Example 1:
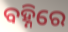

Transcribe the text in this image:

ବହ୍ନିରେ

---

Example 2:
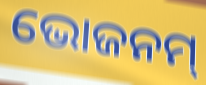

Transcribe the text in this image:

ଭୋଜନମ୍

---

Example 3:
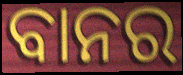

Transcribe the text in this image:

ବାନର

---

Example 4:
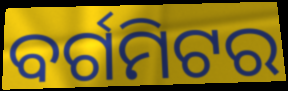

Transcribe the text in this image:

ବର୍ଗମିଟର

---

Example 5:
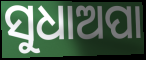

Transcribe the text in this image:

ସୁଧାଅପା